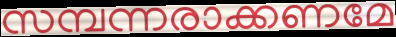
സമ്പന്നരാക്കണമേ